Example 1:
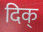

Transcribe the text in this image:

दिक्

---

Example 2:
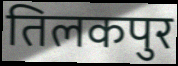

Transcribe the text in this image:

तिलकपुर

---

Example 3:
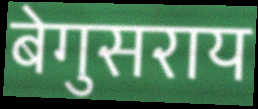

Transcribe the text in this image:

बेगुसराय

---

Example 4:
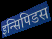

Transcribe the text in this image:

इन्सिपिडस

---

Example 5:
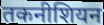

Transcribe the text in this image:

तकनीशियन